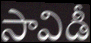
సావిడీ